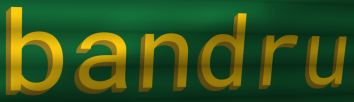
bandru